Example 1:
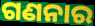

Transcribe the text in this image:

ଗଣନାର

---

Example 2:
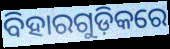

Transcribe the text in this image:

ବିହାରଗୁଡ଼ିକରେ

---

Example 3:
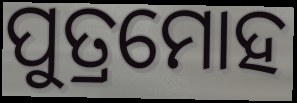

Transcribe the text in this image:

ପୁତ୍ରମୋହ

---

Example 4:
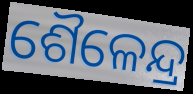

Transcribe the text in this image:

ଶୈଳେନ୍ଦ୍ର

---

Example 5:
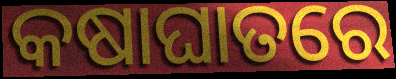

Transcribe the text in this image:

କଷାଘାତରେ